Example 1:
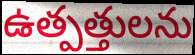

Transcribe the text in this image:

ఉత్పత్తులను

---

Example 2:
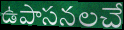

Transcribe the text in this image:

ఉపాసనలచే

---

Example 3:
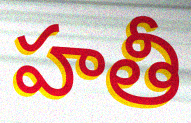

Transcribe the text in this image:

హతీ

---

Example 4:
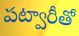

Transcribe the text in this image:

పట్వారీతో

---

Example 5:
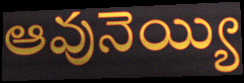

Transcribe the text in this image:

ఆవునెయ్యి